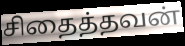
சிதைத்தவன்